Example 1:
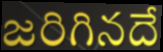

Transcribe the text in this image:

జరిగినదే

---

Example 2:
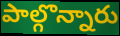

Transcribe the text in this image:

పాల్గొన్నారు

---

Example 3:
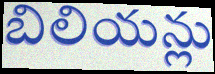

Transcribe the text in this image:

బిలియన్లు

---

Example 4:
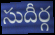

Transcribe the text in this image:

సుదీర్గ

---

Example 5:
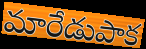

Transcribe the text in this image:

మారేడుపాక